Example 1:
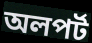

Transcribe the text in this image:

অলপর্ট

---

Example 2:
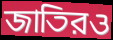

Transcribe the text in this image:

জাতিরও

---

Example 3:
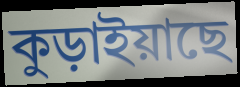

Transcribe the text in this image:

কুড়াইয়াছে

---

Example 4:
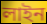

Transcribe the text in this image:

লাইন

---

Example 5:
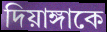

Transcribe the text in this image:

দিয়াঙ্গাকে